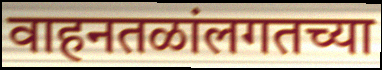
वाहनतळांलगतच्या